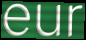
eur